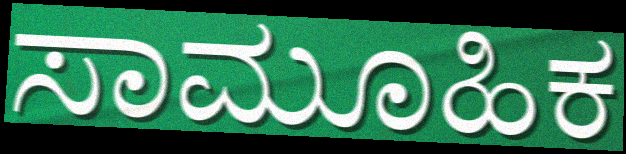
ಸಾಮೂಹಿಕ